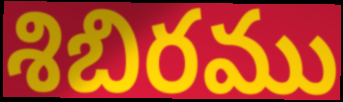
శిబిరము